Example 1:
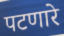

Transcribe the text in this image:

पटणारे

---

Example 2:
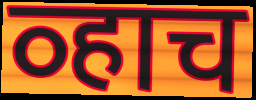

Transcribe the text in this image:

व्हाच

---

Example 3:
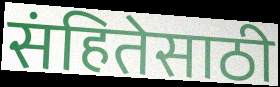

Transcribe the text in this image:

संहितेसाठी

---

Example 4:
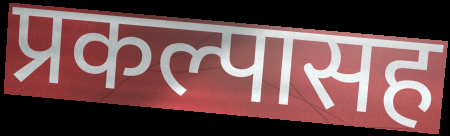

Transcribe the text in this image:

प्रकल्पासह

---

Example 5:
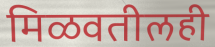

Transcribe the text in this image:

मिळवतीलही